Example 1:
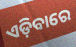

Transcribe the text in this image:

ଏଡ଼ିବାରେ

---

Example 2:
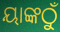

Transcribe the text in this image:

ୟାଙ୍କଠୁଁ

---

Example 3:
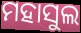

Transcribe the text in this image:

ମହାସୁଲ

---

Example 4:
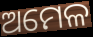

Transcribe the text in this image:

ଅମେଳ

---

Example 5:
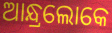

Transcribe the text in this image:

ଆନ୍ଧ୍ରଲୋକେ